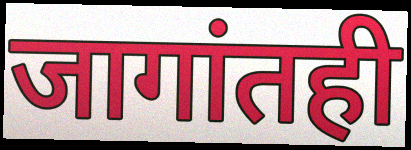
जागांतही